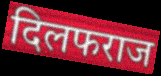
दिलफराज